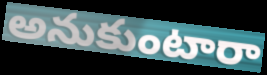
అనుకుంటారా